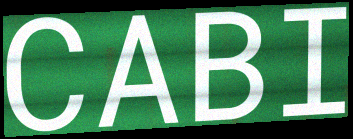
CABI